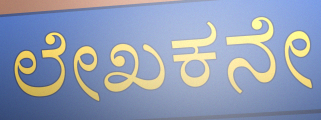
ಲೇಖಕನೇ